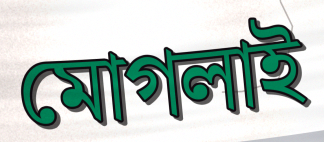
মোগলাই